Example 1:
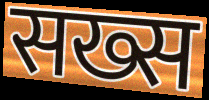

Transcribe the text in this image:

सख्स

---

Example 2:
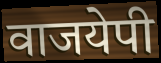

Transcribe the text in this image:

वाजयेपी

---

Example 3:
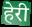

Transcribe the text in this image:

हेरी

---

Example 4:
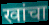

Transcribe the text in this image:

खांचा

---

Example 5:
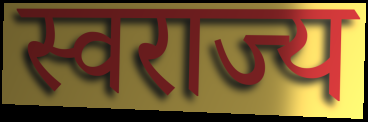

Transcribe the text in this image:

स्वराज्य